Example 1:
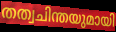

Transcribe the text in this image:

തത്വചിന്തയുമായി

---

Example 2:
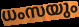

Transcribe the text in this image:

ധംസയും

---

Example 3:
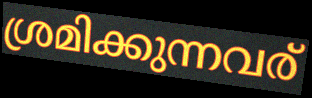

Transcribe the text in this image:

ശ്രമിക്കുന്നവര്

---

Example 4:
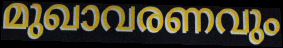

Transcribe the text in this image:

മുഖാവരണവും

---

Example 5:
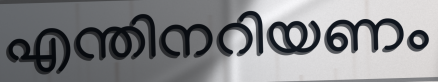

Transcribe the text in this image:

എന്തിനറിയണം